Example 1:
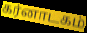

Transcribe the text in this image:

கர்னாடகம்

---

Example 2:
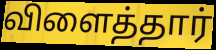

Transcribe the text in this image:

விளைத்தார்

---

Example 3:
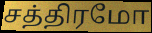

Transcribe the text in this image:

சத்திரமோ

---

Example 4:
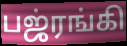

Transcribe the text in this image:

பஜ்ரங்கி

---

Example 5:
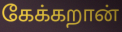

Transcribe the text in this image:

கேக்கறான்